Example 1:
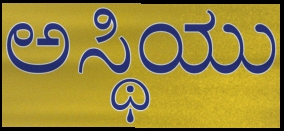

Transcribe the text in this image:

ಅಸ್ಥಿಯು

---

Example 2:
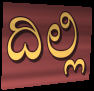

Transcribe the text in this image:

ದಿಲ್ಲಿ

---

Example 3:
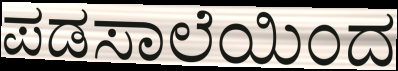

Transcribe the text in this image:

ಪಡಸಾಲೆಯಿಂದ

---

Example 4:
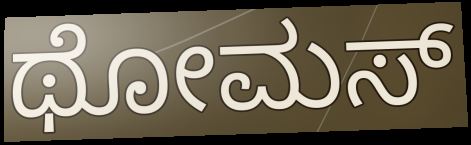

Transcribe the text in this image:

ಥೋಮಸ್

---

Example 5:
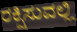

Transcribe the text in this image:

ರಕ್ಷಿಸುವಲ್ಲಿ